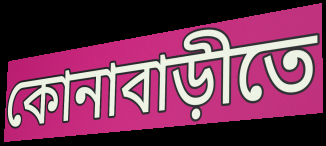
কোনাবাড়ীতে